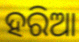
ହରିଆ